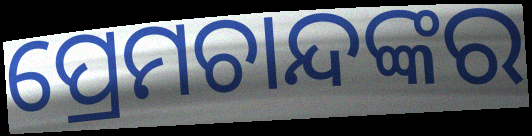
ପ୍ରେମଚାନ୍ଦଙ୍କର